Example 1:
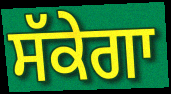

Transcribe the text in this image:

ਸੱਕੇਗਾ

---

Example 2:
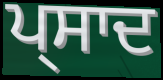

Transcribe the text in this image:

ਪ੍ਸਾਦ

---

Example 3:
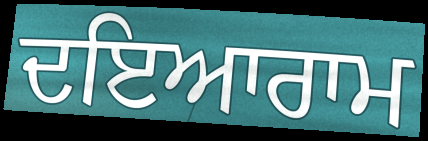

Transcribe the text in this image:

ਦਇਆਰਾਮ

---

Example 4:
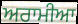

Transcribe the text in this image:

ਅਰਾਮੀਆ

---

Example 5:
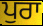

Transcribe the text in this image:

ਪੁਰਾ